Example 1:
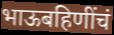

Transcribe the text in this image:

भाऊबहिणींचं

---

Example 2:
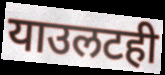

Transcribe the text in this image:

याउलटही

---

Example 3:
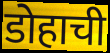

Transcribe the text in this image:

डोहाची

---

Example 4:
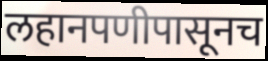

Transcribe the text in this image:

लहानपणीपासूनच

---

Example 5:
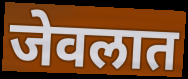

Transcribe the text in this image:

जेवलात